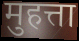
मुहत्ता